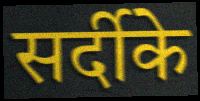
सर्दीके